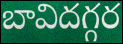
బావిదగ్గర